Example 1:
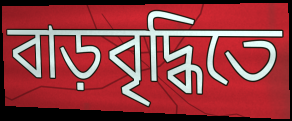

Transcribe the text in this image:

বাড়বৃদ্ধিতে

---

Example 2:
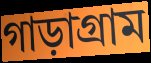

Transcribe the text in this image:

গাড়াগ্রাম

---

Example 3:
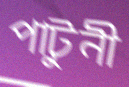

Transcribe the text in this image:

পাটুনী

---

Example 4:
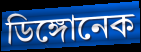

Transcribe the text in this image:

ডিঙ্গোনেক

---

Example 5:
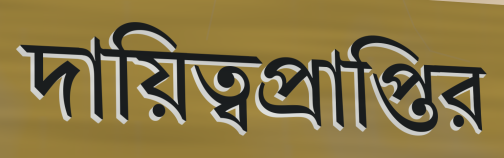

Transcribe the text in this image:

দায়িত্বপ্রাপ্তির